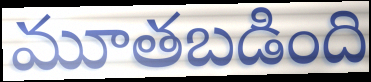
మూతబడింది